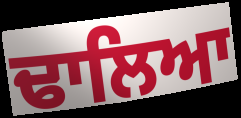
ਢਾਲਿਆ